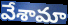
వేశామా